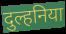
दुल्हनिया